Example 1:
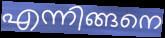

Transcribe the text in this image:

എന്നിങ്ങനെ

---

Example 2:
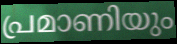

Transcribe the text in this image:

പ്രമാണിയും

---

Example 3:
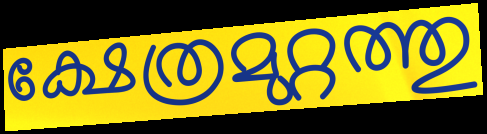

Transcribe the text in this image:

ക്ഷേത്രമുറ്റത്തു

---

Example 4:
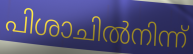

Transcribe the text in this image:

പിശാചിൽനിന്ന്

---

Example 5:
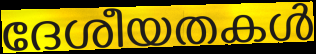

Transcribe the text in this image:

ദേശീയതകൾ